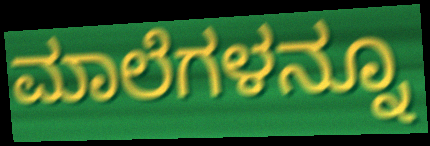
ಮಾಲೆಗಳನ್ನೂ